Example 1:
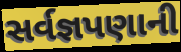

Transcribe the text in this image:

સર્વજ્ઞપણાની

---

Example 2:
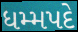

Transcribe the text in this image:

ધમ્મપદે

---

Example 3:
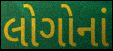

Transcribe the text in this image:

લોગોનાં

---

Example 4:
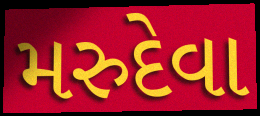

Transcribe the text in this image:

મરુદેવા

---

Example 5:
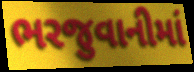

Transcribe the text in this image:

ભરજુવાનીમાં